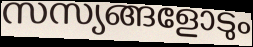
സസ്യങ്ങളോടും